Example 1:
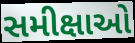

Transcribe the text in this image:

સમીક્ષાઓ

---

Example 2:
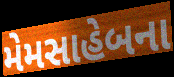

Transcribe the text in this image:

મેમસાહેબના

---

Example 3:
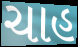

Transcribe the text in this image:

ચાહ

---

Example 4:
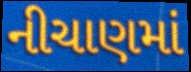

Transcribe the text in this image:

નીચાણમાં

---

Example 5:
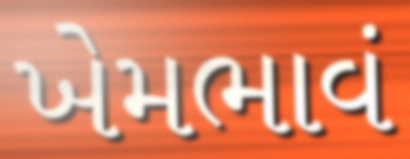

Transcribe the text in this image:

ખેમભાવં